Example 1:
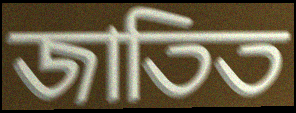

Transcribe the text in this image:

জাতিত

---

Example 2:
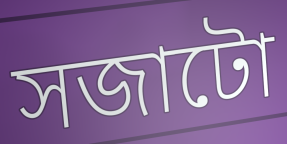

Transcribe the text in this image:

সজাটো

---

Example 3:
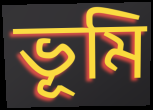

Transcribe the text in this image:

ভূমি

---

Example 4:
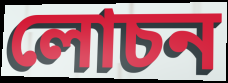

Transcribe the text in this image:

লোচন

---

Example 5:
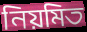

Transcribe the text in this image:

নিয়মিত